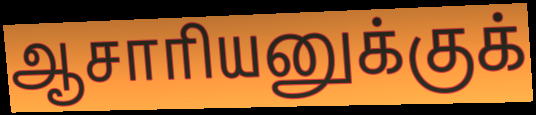
ஆசாரியனுக்குக்